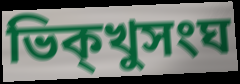
ভিক্খুসংঘ